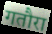
गतौरा